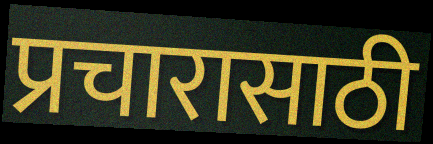
प्रचारासाठी